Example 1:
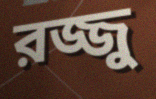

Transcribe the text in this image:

রজ্জু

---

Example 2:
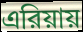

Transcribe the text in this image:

এরিয়ায়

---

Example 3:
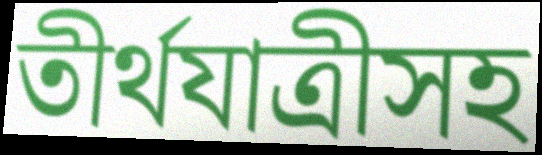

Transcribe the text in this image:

তীর্থযাত্রীসহ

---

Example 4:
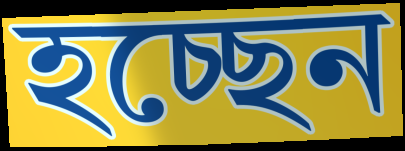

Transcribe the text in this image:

হচ্ছেন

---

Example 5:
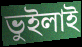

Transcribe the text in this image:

ভুইলাই